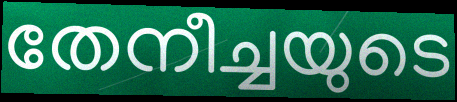
തേനീച്ചയുടെ